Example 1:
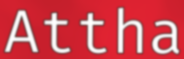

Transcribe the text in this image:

Attha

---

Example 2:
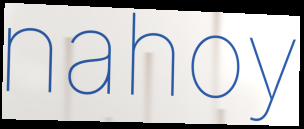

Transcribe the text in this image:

nahoy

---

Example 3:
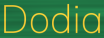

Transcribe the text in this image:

Dodia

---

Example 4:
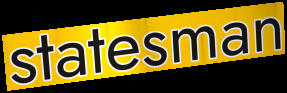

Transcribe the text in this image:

statesman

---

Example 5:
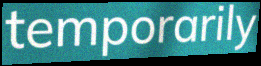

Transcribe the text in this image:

temporarily